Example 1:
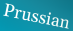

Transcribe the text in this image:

Prussian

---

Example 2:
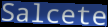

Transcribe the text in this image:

Salcete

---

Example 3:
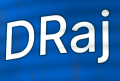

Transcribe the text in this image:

DRaj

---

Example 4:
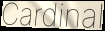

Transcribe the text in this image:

Cardinal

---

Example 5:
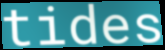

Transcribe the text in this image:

tides